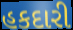
હકદારી